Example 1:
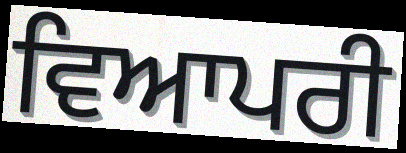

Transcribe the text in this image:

ਵਿਆਪਰੀ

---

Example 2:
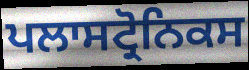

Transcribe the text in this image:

ਪਲਾਸਟ੍ਰੋਨਿਕਸ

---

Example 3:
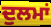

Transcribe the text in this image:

ਦੁਲਮਾਂ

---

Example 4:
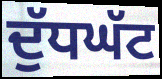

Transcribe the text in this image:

ਦੁੱਧਘੱਟ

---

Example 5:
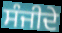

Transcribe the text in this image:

ਸੰਜੀਦੇ